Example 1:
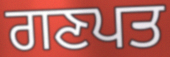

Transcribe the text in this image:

ਗਣਪਤ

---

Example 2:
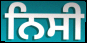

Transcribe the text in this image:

ਨਿਸੀ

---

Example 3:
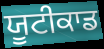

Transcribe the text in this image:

ਯੂਟੀਕਾਡ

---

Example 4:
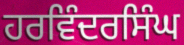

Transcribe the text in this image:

ਹਰਵਿੰਦਰਸਿੰਘ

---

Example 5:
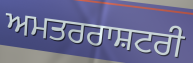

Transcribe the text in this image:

ਅਮਤਰਰਾਸ਼ਟਰੀ